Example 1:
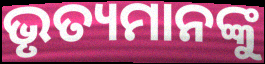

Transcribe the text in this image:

ଭୃତ୍ୟମାନଙ୍କୁ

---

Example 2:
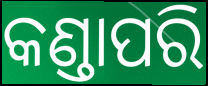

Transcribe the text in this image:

କଣ୍ଡାପରି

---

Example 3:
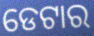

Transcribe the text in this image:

ଡେଟାର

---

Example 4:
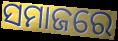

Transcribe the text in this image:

ସମାଜରେ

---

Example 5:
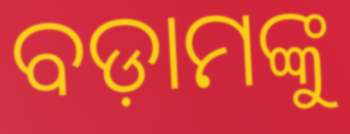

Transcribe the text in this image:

ବଡ଼ାମଙ୍କୁ